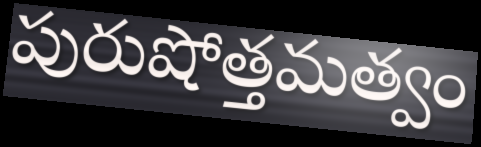
పురుషోత్తమత్వం